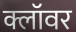
क्लॉवर